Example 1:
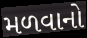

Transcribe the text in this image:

મળવાનો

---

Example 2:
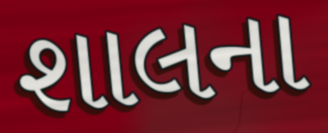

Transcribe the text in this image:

શાલના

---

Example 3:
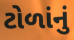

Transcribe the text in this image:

ટોળાંનું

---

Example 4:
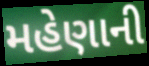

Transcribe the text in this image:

મહેણાની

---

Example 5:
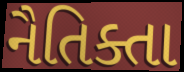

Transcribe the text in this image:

નૈતિક્તા